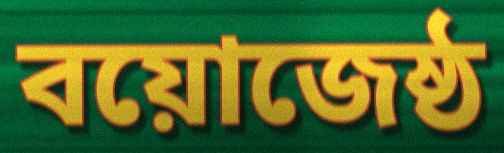
বয়োজেষ্ঠ